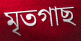
মৃতগাছ